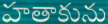
హతాకును